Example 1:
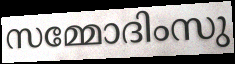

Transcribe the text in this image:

സമ്മോദിംസു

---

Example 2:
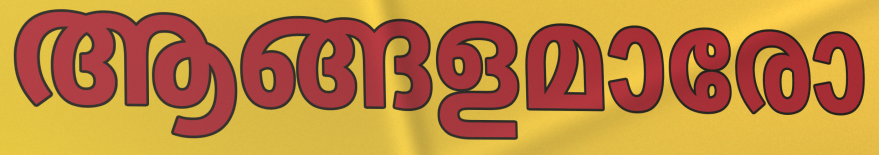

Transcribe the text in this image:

ആങ്ങളമാരോ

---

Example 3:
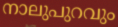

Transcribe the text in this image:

നാലുപുറവും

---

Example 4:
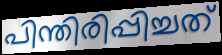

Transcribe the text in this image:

പിന്തിരിപ്പിച്ചത്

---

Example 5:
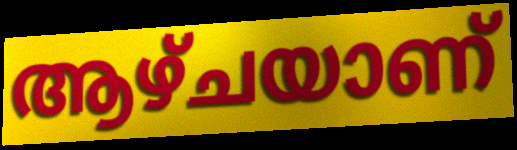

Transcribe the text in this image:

ആഴ്ചയാണ്